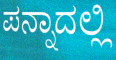
ಪನ್ನಾದಲ್ಲಿ